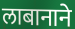
लाबानाने